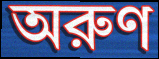
অরুণ